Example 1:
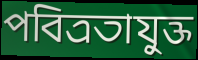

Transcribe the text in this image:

পবিত্রতাযুক্ত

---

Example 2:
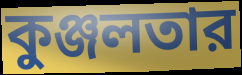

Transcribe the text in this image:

কুঞ্জলতার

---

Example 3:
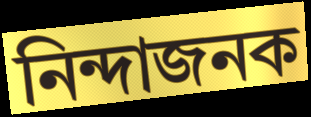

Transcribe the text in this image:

নিন্দাজনক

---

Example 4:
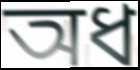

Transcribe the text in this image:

অধ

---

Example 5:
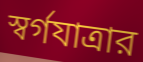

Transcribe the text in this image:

স্বর্গযাত্রার